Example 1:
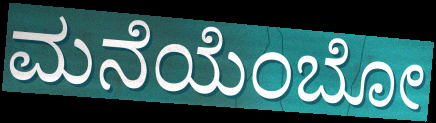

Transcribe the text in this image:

ಮನೆಯೆಂಬೋ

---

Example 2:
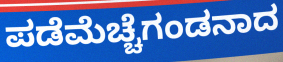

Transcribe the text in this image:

ಪಡೆಮೆಚ್ಚೆಗಂಡನಾದ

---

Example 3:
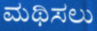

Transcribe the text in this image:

ಮಥಿಸಲು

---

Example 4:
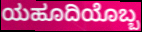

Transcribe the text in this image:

ಯಹೂದಿಯೊಬ್ಬ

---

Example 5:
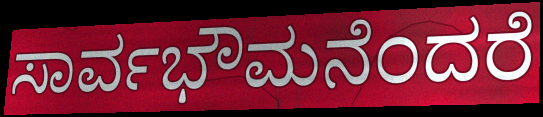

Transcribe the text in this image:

ಸಾರ್ವಭೌಮನೆಂದರೆ